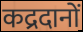
कद्रदानों